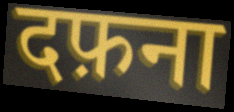
दफ़ना